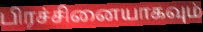
பிரச்சினையாகவும்